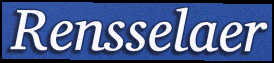
Rensselaer